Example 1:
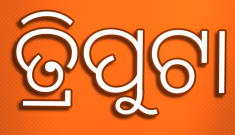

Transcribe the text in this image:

ତ୍ରିପୁଟା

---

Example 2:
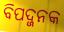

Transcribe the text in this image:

ବିପଦ୍ଜନକ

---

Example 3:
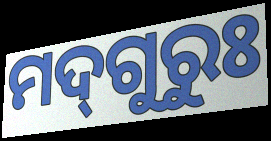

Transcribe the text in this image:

ମଦ୍‌ଗୁରୁଃ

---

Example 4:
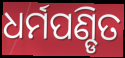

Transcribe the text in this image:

ଧର୍ମପଣ୍ଡିତ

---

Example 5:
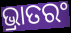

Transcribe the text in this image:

ଭ୍ରାତରଂ